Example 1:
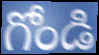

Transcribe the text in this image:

గోండి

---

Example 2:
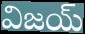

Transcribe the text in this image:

విజయ్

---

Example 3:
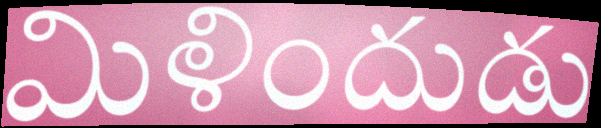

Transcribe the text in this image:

మిళిందుడు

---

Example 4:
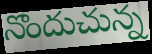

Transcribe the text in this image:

నొందుచున్న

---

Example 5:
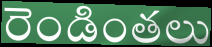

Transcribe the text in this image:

రెండింతలు